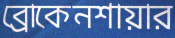
ব্রোকেনশায়ার